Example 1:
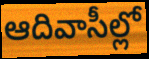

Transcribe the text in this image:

ఆదివాసీల్లో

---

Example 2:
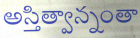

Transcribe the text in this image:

అస్తిత్వాన్నంతా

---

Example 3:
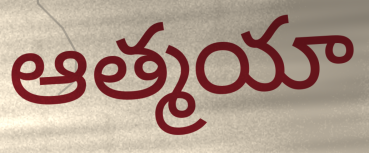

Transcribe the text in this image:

ఆత్మయా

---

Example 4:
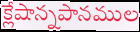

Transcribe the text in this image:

క్లేషాన్నపానముల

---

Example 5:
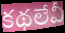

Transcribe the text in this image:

కథలేవీ